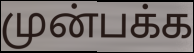
முன்பக்க